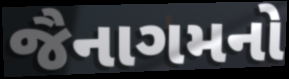
જૈનાગમનો